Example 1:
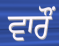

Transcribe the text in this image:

ਵਾਰੌਂ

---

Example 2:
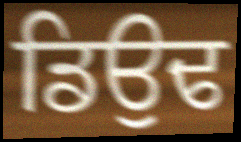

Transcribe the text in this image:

ਡਿਉਢ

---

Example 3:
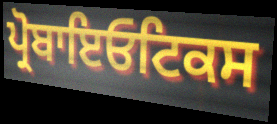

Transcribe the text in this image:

ਪ੍ਰੋਬਾਇਓਟਿਕਸ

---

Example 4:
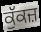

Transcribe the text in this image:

ਕੁੱਕਜ਼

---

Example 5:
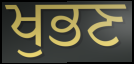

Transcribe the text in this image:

ਖੁਭਣ